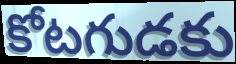
కోటగుడకు